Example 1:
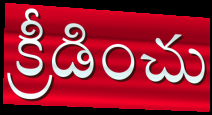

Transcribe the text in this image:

క్రీడించు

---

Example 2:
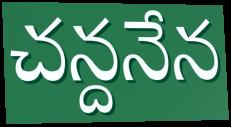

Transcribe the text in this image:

చన్దనేన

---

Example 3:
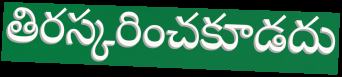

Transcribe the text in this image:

తిరస్కరించకూడదు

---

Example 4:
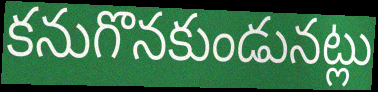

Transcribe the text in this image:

కనుగొనకుండునట్లు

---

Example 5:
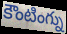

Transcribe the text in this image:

కౌంటింగ్ను